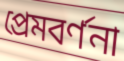
প্রেমবর্ণনা